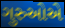
ગુરુઓએ